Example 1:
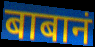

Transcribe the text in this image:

बाबानं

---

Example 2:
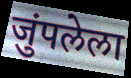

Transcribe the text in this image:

जुंपलेला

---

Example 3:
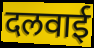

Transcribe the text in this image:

दलवाई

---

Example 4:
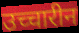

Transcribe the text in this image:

उच्चारीन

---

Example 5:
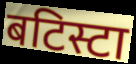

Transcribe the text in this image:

बटिस्टा